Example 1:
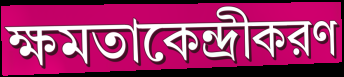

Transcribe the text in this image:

ক্ষমতাকেন্দ্রীকরণ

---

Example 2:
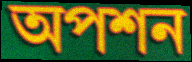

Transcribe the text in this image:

অপশন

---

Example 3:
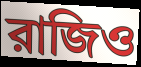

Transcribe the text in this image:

রাজিও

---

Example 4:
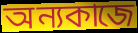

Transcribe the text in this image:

অন্যকাজে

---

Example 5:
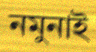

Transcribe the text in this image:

নমুনাই